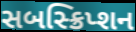
સબસ્ક્રિપ્શન